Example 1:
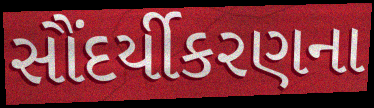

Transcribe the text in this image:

સૌંદર્યીકરણના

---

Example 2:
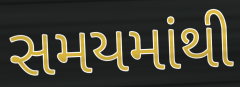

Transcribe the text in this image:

સમયમાંથી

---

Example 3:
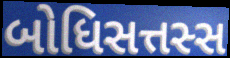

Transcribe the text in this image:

બોધિસત્તસ્સ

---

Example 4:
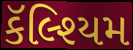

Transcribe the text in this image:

કૅલ્શ્યિમ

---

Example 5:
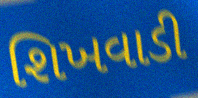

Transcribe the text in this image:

શિખવાડી